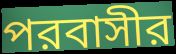
পরবাসীর